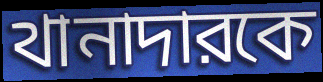
থানাদারকে